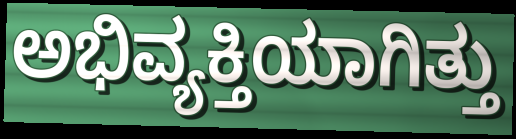
ಅಭಿವ್ಯಕ್ತಿಯಾಗಿತ್ತು